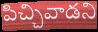
పిచ్చివాడని